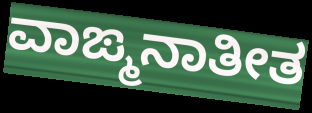
ವಾಙ್ಮನಾತೀತ